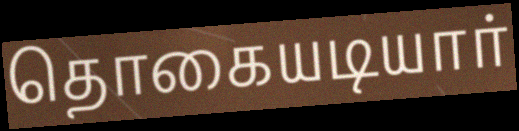
தொகையடியார்